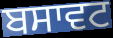
ਬਸਾਵਟ